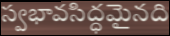
స్వభావసిద్ధమైనది